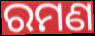
ରମଣ